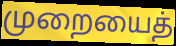
முறையைத்